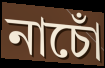
নাচোঁ